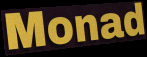
Monad